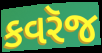
કવરૅજ